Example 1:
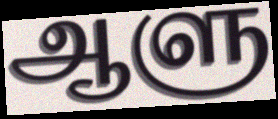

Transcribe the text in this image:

ஆளு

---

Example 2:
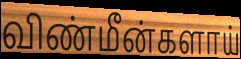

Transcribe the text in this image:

விண்மீன்களாய்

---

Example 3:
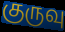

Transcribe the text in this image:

குருவு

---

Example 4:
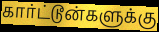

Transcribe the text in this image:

கார்ட்டூன்களுக்கு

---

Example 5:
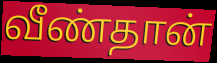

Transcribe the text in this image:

வீண்தான்